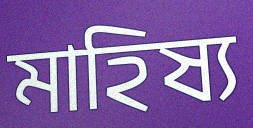
মাহিষ্য